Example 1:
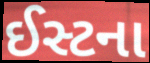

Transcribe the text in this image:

ઈસ્ટના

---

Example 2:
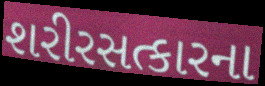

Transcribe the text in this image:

શરીરસત્કારના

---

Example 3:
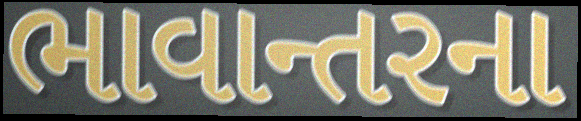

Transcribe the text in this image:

ભાવાન્તરના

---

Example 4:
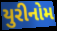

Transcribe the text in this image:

યુરીનોમ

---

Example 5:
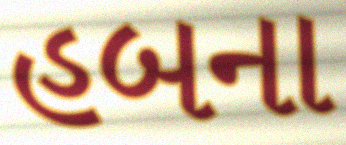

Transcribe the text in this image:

હબના